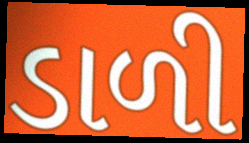
ડાળી